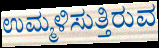
ಉಮ್ಮಳಿಸುತ್ತಿರುವ